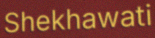
Shekhawati